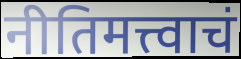
नीतिमत्त्वाचं